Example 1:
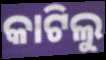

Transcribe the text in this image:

କାଟିଲୁ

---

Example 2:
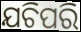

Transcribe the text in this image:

ଯଚିପରି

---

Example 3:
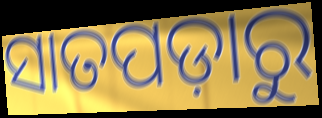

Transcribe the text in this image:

ସାତପଡ଼ାରୁ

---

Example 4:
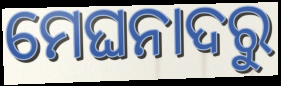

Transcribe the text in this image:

ମେଘନାଦରୁ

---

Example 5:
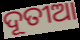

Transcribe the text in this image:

ଦୂତୀଆ